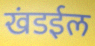
खंडईल